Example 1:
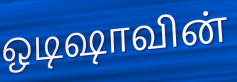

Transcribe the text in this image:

ஒடிஷாவின்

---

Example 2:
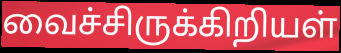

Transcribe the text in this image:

வைச்சிருக்கிறியள்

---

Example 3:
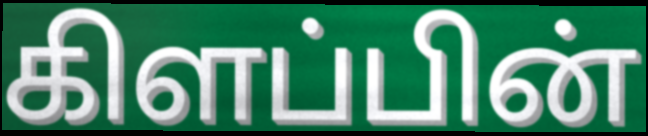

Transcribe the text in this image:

கிளப்பின்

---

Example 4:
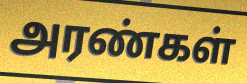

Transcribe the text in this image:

அரண்கள்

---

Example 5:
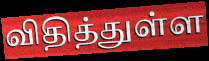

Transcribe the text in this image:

விதித்துள்ள